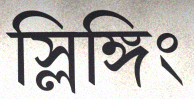
স্লিঙ্গিং